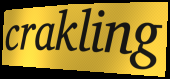
crakling